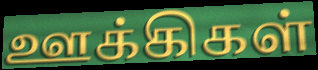
ஊக்கிகள்